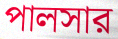
পালসার